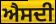
ਐਸਦੀ